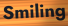
Smiling